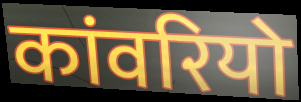
कांवरियो